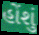
હોંશું